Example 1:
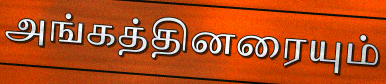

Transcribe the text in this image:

அங்கத்தினரையும்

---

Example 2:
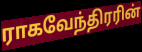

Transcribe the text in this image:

ராகவேந்திரரின்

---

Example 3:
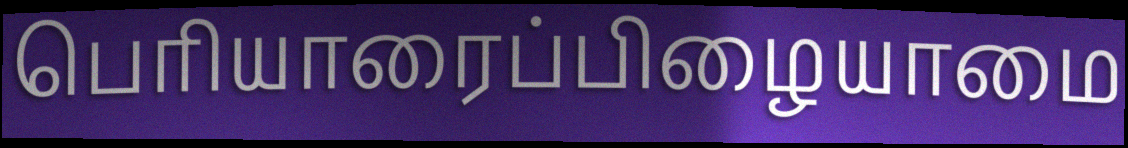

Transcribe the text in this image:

பெரியாரைப்பிழையாமை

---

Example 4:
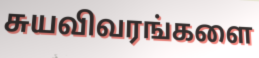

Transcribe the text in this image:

சுயவிவரங்களை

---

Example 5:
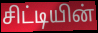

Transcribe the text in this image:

சிட்டியின்